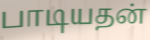
பாடியதன்